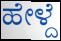
ಹೇಳ್ದೆ